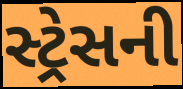
સ્ટ્રેસની